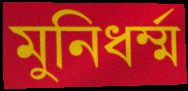
মুনিধর্ম্ম